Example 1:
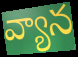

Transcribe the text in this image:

వ్యాన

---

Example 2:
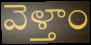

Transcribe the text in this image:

వెళ్తాం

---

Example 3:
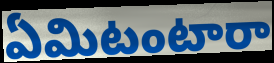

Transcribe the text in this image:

ఏమిటంటారా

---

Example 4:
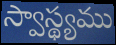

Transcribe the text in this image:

స్వాస్థ్యము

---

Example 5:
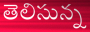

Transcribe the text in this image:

తెలిసున్న